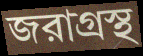
জরাগ্রস্থ